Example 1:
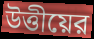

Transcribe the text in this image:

উত্তীয়ের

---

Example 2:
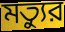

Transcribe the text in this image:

মত্যুর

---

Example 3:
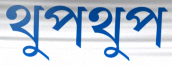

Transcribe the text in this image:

থুপথুপ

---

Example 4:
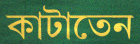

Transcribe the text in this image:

কাটাতেন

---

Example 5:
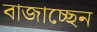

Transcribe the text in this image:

বাজাচ্ছেন